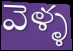
వెళ్ళ